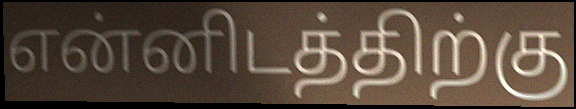
என்னிடத்திற்கு